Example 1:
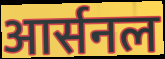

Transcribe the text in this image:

आर्सनल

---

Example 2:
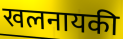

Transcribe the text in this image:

खलनायकी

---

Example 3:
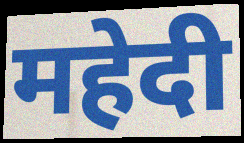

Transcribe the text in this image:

महेदी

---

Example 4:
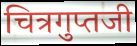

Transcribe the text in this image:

चित्रगुप्तजी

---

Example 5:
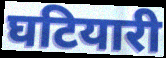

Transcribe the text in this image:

घटियारी